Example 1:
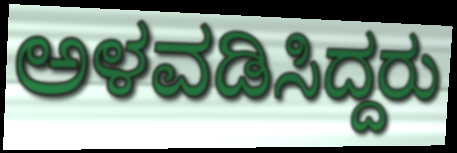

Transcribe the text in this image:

ಅಳವಡಿಸಿದ್ದರು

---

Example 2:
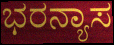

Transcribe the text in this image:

ಭರನ್ಯಾಸ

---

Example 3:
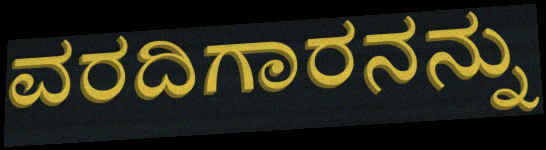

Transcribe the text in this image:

ವರದಿಗಾರನನ್ನು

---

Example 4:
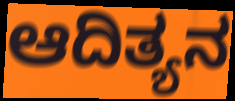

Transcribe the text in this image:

ಆದಿತ್ಯನ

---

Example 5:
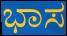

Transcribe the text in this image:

ಭಾಸ